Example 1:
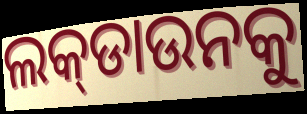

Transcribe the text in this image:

ଲକ୍‌ଡାଉନକୁ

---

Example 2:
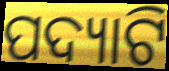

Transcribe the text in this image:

ପଦ୍ୟାଟି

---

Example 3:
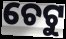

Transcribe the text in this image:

ଚେଟୁ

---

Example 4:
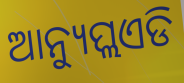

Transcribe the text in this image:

ଆନ୍ୟୁପ୍ଲଏଡି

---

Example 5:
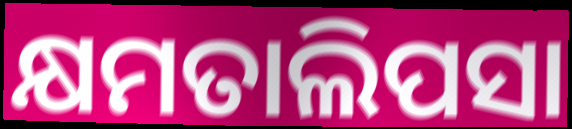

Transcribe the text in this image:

କ୍ଷମତାଲିପସା